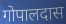
गोपालदास